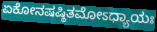
ಏಕೋನಷಷ್ಠಿತಮೋಽಧ್ಯಾಯಃ